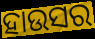
ହାଉସର